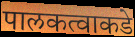
पालकत्वाकडे